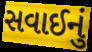
સવાઈનું